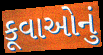
કૂવાઓનું